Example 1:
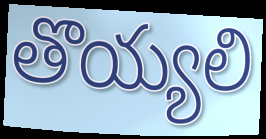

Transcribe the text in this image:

తొయ్యలి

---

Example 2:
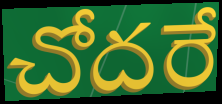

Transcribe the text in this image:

చోదరే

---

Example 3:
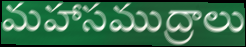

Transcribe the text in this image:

మహాసముద్రాలు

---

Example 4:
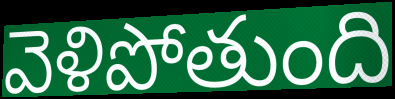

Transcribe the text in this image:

వెళిపోతుంది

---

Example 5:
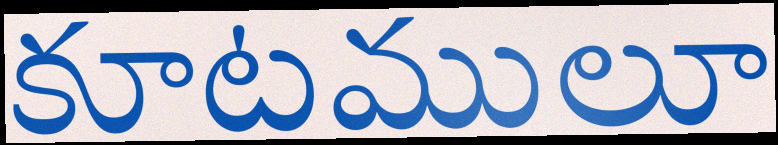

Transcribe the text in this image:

కూటములూ